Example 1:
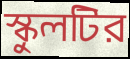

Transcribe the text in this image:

স্কুলটির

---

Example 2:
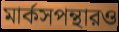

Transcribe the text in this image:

মার্কসপন্থারও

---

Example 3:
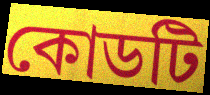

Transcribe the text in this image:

কোডটি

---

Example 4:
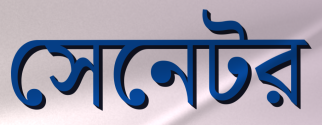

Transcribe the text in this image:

সেনেটর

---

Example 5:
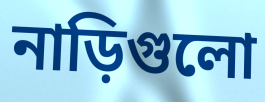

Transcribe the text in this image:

নাড়িগুলো